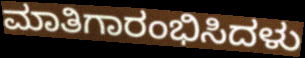
ಮಾತಿಗಾರಂಭಿಸಿದಳು